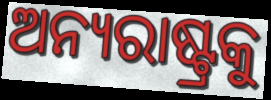
ଅନ୍ୟରାଷ୍ଟ୍ରକୁ